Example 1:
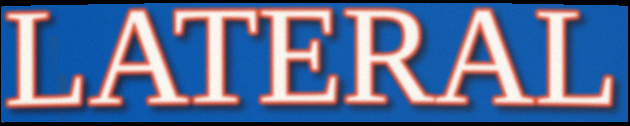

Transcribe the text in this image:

LATERAL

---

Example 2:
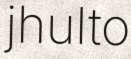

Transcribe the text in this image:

jhulto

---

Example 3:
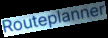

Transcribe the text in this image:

Routeplanner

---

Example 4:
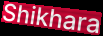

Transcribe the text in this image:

Shikhara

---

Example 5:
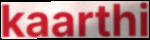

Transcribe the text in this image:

kaarthi